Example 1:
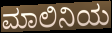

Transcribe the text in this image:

ಮಾಲಿನಿಯ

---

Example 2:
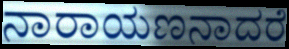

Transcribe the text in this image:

ನಾರಾಯಣನಾದರೆ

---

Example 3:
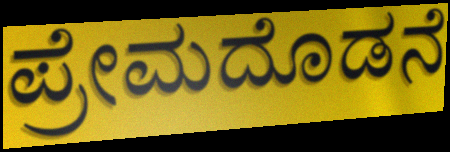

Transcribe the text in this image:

ಪ್ರೇಮದೊಡನೆ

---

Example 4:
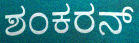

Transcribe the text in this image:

ಶಂಕರನ್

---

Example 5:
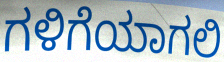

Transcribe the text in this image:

ಗಳಿಗೆಯಾಗಲಿ